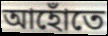
আহোঁতে